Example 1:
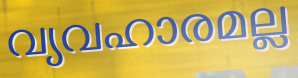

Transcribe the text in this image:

വ്യവഹാരമല്ല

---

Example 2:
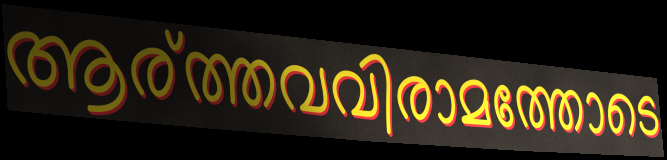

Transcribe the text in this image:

ആര്ത്തവവിരാമത്തോടെ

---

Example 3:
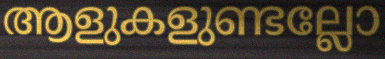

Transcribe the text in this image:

ആളുകളുണ്ടല്ലോ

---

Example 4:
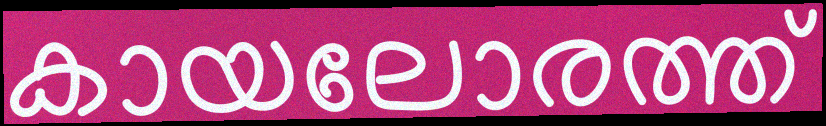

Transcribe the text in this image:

കായലോരത്ത്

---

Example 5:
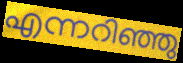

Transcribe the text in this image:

എന്നറിഞ്ഞു